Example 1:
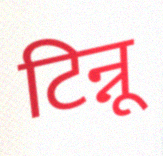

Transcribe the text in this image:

टिन्नू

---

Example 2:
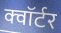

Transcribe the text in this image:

क्‍वॉर्टर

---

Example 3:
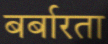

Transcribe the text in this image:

बर्बारता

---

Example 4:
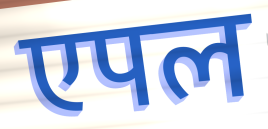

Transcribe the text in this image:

एपल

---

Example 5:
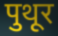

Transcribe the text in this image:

पुथूर